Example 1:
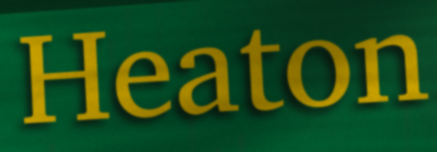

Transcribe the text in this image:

Heaton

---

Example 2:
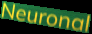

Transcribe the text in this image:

Neuronal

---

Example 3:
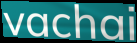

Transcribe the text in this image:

vachai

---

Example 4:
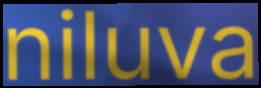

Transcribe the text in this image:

niluva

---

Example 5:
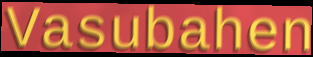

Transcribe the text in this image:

Vasubahen